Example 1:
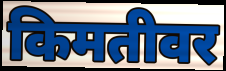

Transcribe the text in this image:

किमतीवर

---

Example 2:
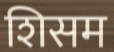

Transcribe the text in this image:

शिसम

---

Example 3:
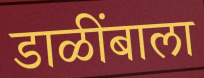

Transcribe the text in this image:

डाळींबाला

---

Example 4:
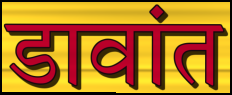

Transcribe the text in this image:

डावांत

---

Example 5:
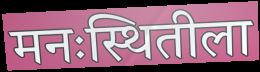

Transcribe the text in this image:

मनःस्थितीला